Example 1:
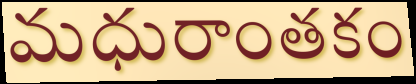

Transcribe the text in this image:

మధురాంతకం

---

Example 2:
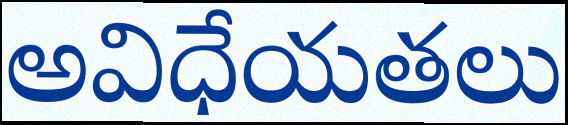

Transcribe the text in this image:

అవిధేయతలు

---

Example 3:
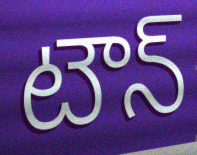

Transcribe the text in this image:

టౌన్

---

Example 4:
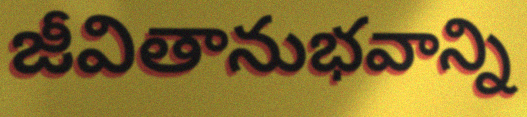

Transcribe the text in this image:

జీవితానుభవాన్ని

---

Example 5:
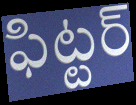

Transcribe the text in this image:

ఫిట్టర్